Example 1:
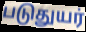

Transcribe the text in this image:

படுதுயர்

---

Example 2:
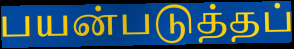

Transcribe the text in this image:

பயன்படுத்தப்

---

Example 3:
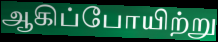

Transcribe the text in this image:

ஆகிப்போயிற்று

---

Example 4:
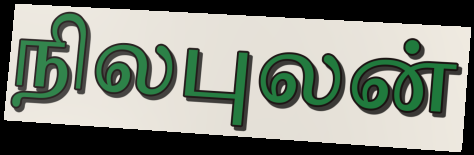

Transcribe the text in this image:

நிலபுலன்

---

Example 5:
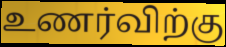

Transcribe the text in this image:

உணர்விற்கு